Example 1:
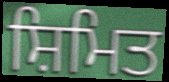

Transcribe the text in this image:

ਸ਼ਿਮਿਤ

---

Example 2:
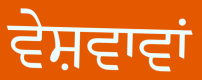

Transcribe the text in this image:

ਵੇਸ਼ਵਾਵਾਂ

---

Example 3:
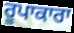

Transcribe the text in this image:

ਰੂਪਾਕਾਰਾ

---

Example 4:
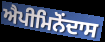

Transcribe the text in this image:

ਐਪੀਮਿਨੋਂਦਾਸ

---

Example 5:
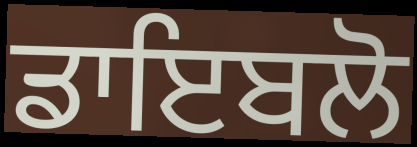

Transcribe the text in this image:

ਡਾਇਬਲੋ